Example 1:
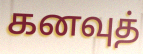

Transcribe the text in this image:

கனவுத்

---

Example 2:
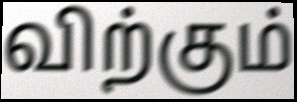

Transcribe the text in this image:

விற்கும்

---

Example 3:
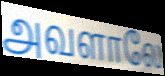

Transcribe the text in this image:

அவளாலே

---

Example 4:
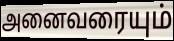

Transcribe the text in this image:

அனைவரையும்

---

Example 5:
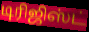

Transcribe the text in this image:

டிரிஜிஸ்ட்